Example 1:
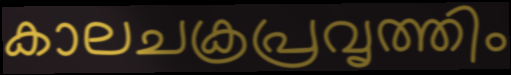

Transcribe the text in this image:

കാലചക്രപ്രവൃത്തിം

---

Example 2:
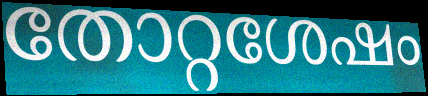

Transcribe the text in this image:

തോറ്റശേഷം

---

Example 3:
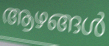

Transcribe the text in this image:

ആഴങ്ങൾ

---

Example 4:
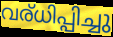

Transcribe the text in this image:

വര്ധിപ്പിച്ചു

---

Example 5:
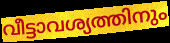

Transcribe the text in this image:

വീട്ടാവശ്യത്തിനും